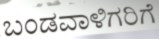
ಬಂಡವಾಳಿಗರಿಗೆ